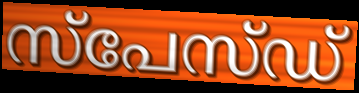
സ്പേസ്ഡ്